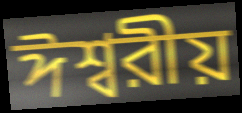
ঈশ্বরীয়